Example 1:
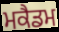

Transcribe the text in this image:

ਮਕੈਡਮ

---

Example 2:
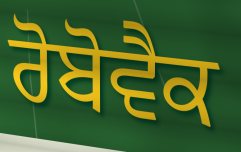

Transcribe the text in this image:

ਰੋਬੋਵੈਕ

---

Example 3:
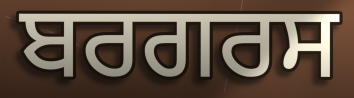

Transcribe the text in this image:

ਬਰਗਰਸ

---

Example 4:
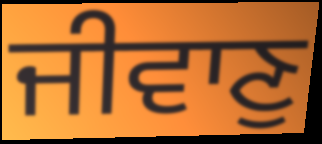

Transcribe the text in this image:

ਜੀਵਾਣੁ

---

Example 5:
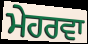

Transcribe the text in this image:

ਮੇਹਰਵਾ